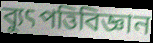
ব্যুৎপত্তিবিজ্ঞান